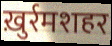
ख़ुर्रमशहर